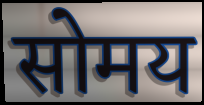
सोमय